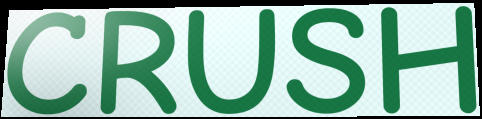
CRUSH